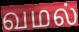
வமல்